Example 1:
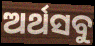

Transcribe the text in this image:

ଅର୍ଥସବୁ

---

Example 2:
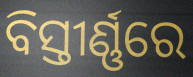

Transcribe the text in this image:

ବିସ୍ତୀର୍ଣ୍ଣରେ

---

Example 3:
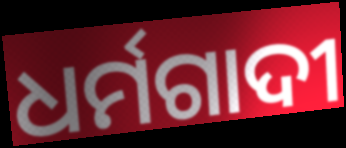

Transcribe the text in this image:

ଧର୍ମଗାଦୀ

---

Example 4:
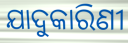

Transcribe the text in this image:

ଯାଦୁକାରିଣୀ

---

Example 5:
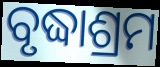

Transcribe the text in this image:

ବୃଦ୍ଧାଶ୍ରମ